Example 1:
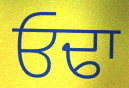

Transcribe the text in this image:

ਓਢਾ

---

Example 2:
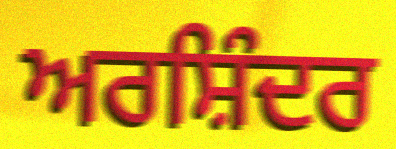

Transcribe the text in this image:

ਅਰਸ਼ਿੰਦਰ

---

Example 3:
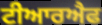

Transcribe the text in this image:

ਟੀਆਰਐਫ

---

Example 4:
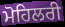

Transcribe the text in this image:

ਮੋਹਿਲਰੀ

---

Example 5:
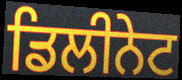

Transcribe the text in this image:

ਡਿਲੀਨੇਟ